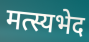
मत्स्यभेद